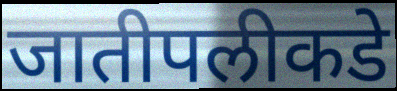
जातीपलीकडे